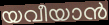
യവീയാൻ